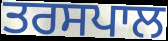
ਤਰਸਪਾਲ